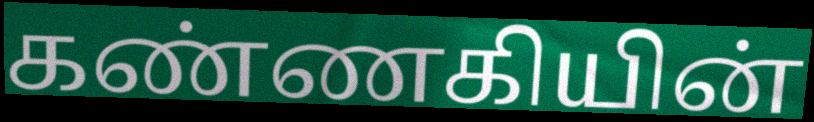
கண்ணகியின்